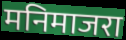
मनिमाजरा